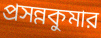
প্রসন্নকুমার